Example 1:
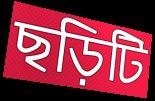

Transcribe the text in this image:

ছড়িটি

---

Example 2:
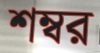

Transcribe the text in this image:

শম্বর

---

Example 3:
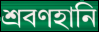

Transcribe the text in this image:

শ্রবণহানি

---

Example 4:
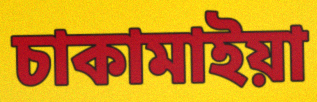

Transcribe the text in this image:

চাকামাইয়া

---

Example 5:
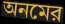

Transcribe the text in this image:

অনমের